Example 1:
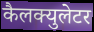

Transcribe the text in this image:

कैलक्युलेटर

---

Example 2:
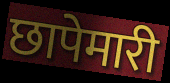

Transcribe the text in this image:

छापेमारी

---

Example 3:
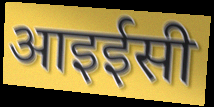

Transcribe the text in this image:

आइईसी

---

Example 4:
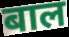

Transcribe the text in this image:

बाल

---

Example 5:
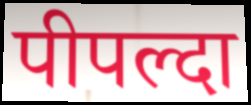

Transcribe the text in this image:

पीपल्दा